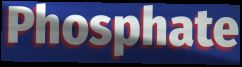
Phosphate